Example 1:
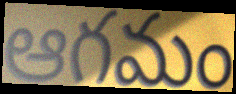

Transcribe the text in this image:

ఆగమం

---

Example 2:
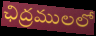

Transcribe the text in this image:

ఛిద్రములలో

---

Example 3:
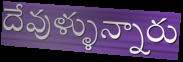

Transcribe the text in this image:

దేవుళ్ళున్నారు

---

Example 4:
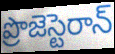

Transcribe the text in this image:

ప్రొజెస్టెరాన్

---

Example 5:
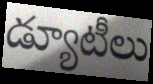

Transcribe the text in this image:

డ్యూటీలు